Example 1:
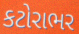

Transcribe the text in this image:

કટોરાભર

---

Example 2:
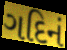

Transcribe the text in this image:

ગદિનં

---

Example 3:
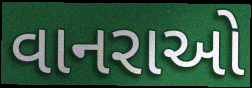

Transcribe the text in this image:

વાનરાઓ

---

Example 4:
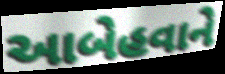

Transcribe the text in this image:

આબેહવાને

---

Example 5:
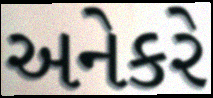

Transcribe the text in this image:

અનેકરે